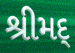
શ્રીમદ્‍